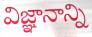
విజ్ఞానాన్ని